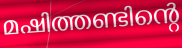
മഷിത്തണ്ടിന്റെ